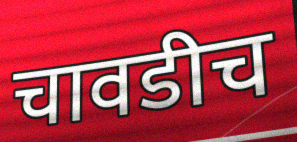
चावडीच